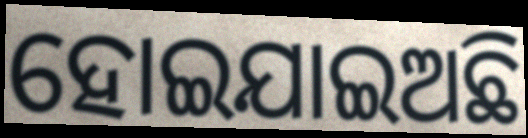
ହୋଇଯାଇଅଛି